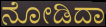
ನೋಡಿದಾ